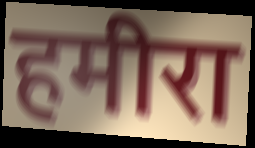
हमीरा